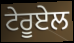
ਟੇਰੂਏਲ